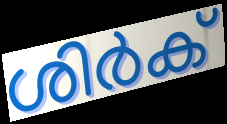
ശിർക്